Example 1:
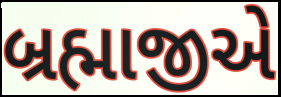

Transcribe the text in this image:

બ્રહ્માજીએ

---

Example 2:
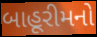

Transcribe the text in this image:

બાહૂરીમનો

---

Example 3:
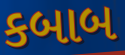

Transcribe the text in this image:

કબાબ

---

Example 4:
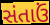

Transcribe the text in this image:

સંતાઉં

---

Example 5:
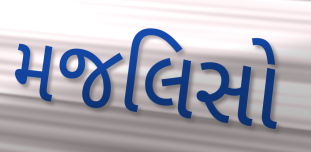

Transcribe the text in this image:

મજલિસો